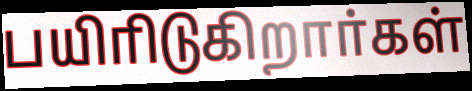
பயிரிடுகிறார்கள்